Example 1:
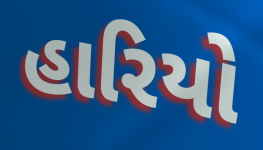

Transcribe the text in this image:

હારિયો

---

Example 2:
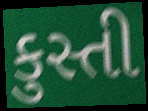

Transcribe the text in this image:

કુસ્તી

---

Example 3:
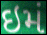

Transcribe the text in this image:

ઇમં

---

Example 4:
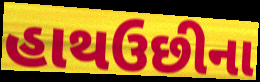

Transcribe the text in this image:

હાથઉછીના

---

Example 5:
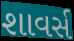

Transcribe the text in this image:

શાવર્સ